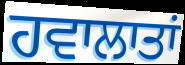
ਹਵਾਲਾਤਾਂ